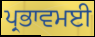
ਪ੍ਰਭਾਵਮਈ